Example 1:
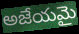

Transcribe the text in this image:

అజేయమై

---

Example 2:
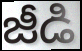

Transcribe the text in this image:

జీడి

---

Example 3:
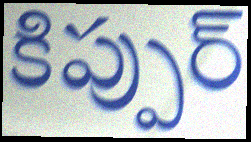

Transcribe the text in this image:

కిప్పుర్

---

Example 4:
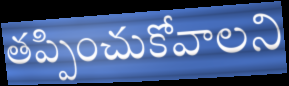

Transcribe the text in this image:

తప్పించుకోవాలని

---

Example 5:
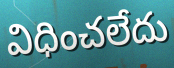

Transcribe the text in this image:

విధించలేదు